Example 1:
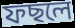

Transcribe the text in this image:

ফছলে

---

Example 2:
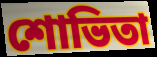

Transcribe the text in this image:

শোভিতা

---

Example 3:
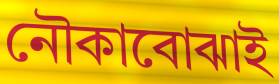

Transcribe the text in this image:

নৌকাবোঝাই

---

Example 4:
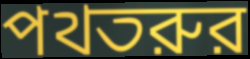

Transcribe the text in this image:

পথতরুর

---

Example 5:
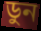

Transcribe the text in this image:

ডুন